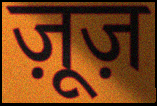
ज़ूज़